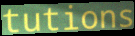
tutions